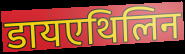
डायएथिलिन